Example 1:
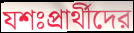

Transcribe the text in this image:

যশঃপ্রার্থীদের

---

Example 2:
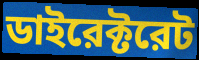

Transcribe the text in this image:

ডাইরেক্টরেট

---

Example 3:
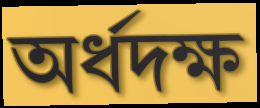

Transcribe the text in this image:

অর্ধদক্ষ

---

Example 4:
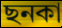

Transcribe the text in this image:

ছনকা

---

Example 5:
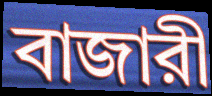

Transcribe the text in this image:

বাজারী